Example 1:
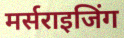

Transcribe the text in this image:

मर्सराइजिंग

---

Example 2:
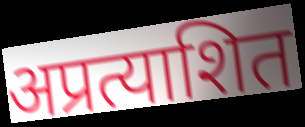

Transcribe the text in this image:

अप्रत्याशित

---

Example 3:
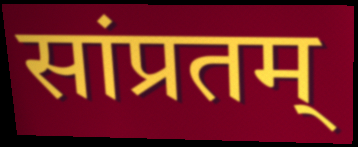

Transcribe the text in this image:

सांप्रतम्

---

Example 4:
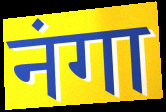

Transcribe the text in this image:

नंगा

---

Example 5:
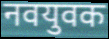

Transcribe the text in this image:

नवयुवक